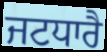
ਜਟਧਾਰੈ